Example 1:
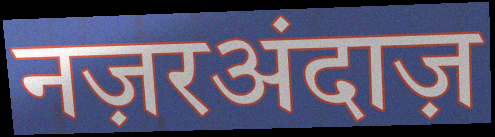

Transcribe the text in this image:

नज़रअंदाज़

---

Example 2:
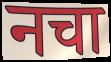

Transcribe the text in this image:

नचा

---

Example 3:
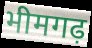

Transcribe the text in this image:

भीमगढ़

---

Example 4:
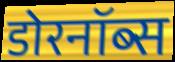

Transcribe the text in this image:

डोरनॉब्स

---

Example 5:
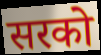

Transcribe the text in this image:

सरको